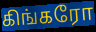
கிங்கரோ